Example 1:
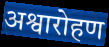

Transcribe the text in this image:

अश्वारोहण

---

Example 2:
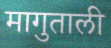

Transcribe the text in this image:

मागुताली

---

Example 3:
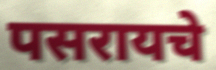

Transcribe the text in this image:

पसरायचे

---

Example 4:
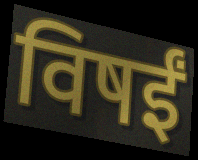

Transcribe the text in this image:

विषईं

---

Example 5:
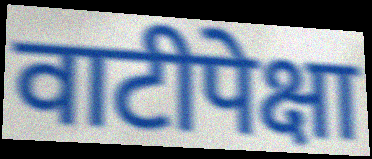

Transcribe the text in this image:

वाटीपेक्षा